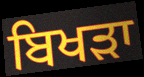
ਬਿਖੜਾ